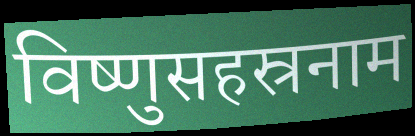
विष्णुसहस्रनाम